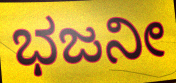
ಭಜನೀ